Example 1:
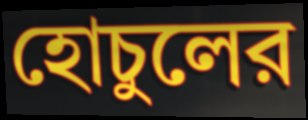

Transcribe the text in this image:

হোচুলের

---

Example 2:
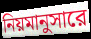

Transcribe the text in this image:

নিয়মানুসারে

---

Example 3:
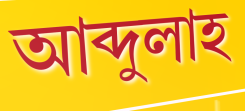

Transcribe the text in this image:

আব্দুলাহ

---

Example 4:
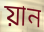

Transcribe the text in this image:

য়ান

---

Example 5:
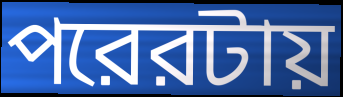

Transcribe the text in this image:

পরেরটায়